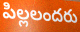
పిల్లలందరు